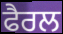
ਫੈਰਲ